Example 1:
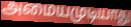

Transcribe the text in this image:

அமையமுடியாது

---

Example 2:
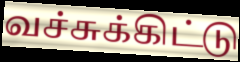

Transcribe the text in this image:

வச்சுக்கிட்டு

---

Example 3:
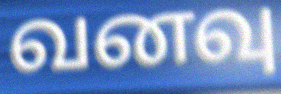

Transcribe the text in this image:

வனவு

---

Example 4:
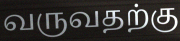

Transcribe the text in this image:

வருவதற்கு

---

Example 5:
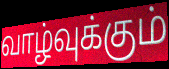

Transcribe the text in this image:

வாழ்வுக்கும்